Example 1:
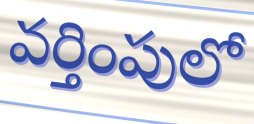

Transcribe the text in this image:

వర్తింపులో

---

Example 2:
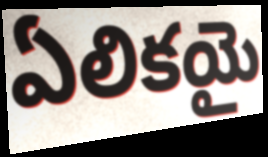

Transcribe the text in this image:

ఏలికయై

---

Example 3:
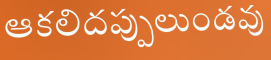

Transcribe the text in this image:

ఆకలిదప్పులుండవు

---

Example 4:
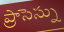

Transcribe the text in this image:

ప్రాసెస్ను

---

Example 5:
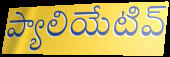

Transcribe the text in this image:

ప్యాలియేటివ్